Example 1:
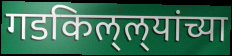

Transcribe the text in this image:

गडकिल्ल्यांच्या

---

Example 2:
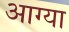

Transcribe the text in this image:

आग्या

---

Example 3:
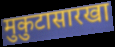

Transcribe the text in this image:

मुकुटासारखा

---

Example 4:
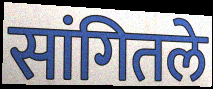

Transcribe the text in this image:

सांगितले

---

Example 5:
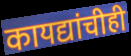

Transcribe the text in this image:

कायद्यांचीही